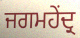
ਜਗਮਹੇਂਦ੍ਰ